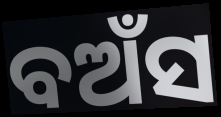
ବଅଁସ